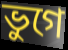
ভুগে